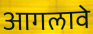
आगलावे